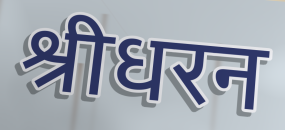
श्रीधरन